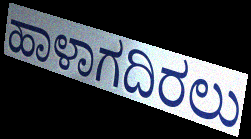
ಹಾಳಾಗದಿರಲು